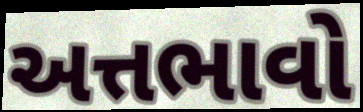
અત્તભાવો